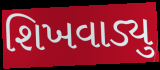
શિખવાડ્યુ